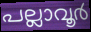
പല്ലാവൂർ